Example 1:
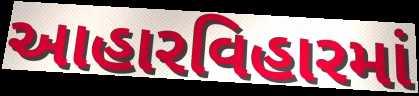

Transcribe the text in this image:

આહારવિહારમાં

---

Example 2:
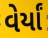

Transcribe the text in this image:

વેર્યાં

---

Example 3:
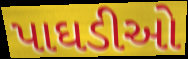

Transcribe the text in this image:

પાઘડીઓ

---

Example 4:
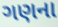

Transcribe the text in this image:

ગણના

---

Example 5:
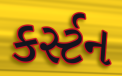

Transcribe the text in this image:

કર્સ્ટન